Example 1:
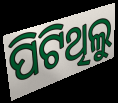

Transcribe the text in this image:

ପିଟିଥିଲୁ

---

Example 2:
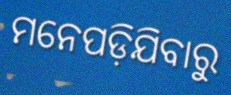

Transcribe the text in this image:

ମନେପଡ଼ିଯିବାରୁ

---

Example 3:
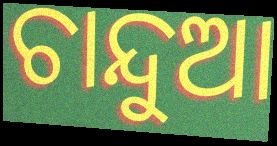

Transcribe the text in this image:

ଚାନ୍ଦୁଆ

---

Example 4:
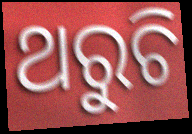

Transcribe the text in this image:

ଥରୁଚି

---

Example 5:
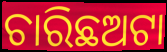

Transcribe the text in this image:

ଚାରିଛଅଟା